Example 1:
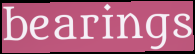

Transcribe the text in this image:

bearings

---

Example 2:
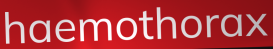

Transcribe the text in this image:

haemothorax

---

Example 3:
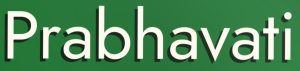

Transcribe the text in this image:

Prabhavati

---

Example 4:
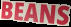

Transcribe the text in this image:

BEANS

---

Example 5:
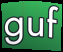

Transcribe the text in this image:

guf